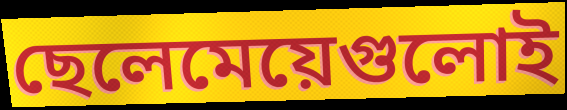
ছেলেমেয়েগুলোই